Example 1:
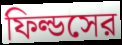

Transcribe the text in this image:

ফিল্ডসের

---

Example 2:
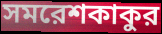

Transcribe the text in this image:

সমরেশকাকুর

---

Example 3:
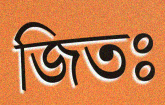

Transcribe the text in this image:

জিতঃ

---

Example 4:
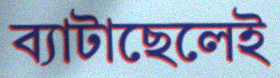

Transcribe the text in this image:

ব্যাটাছেলেই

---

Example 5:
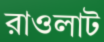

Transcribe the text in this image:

রাওলাট